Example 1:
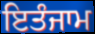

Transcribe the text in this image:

ਇਤੰਜਾਮ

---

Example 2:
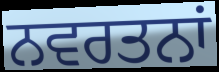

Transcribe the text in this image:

ਨਵਰਤਨਾਂ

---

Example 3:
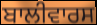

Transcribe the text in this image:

ਬਾਲੀਵਾਰਸ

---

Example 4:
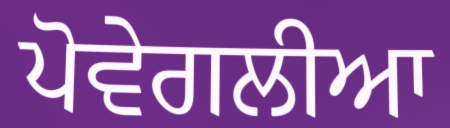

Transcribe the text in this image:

ਪੋਵੇਗਲੀਆ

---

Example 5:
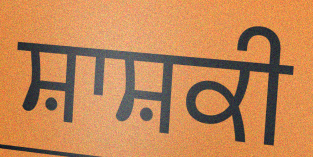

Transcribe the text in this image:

ਸ਼ਾਸ਼ਕੀ